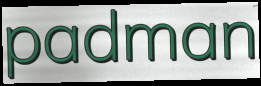
padman